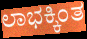
ಲಾಭಕ್ಕಿಂತ